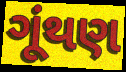
ગૂંથણ